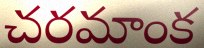
చరమాంక